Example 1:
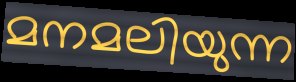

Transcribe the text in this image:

മനമലിയുന്ന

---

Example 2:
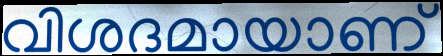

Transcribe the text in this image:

വിശദമായാണ്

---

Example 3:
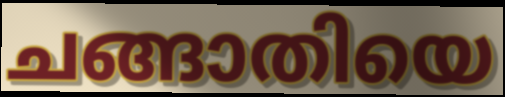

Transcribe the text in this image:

ചങ്ങാതിയെ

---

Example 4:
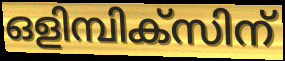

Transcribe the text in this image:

ഒളിമ്പിക്സിന്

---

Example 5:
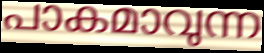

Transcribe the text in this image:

പാകമാവുന്ന